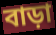
বাড়া